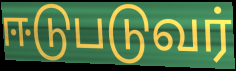
ஈடுபடுவர்